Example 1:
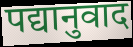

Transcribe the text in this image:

पद्यानुवाद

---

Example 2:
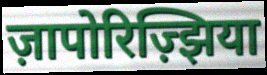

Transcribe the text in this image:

ज़ापोरिज़्झिया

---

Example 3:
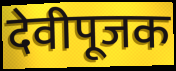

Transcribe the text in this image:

देवीपूजक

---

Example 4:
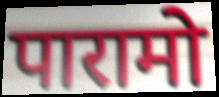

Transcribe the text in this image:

पारामो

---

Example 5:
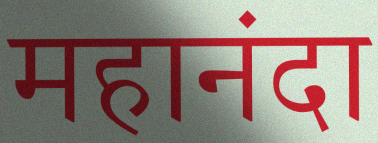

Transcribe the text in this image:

महानंदा